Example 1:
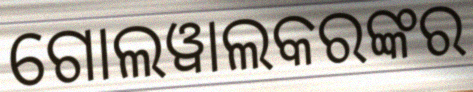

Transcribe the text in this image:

ଗୋଲୱାଲକରଙ୍କର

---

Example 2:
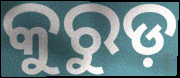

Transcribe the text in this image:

କୁରୁଡ଼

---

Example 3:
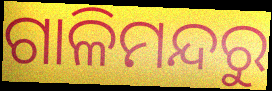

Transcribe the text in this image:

ଗାଳିମନ୍ଦରୁ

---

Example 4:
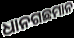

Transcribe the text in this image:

ଧାନଗଛମାନ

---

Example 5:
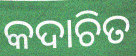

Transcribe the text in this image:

କଦାଚିତ